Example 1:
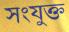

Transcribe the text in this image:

সংযুক্ত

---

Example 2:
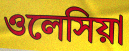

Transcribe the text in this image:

ওলেসিয়া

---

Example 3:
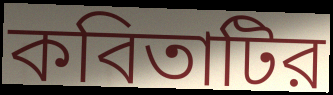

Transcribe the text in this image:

কবিতাটির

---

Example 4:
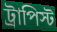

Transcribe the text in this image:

ট্রাপিস্ট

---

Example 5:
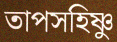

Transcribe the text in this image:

তাপসহিষ্ণু